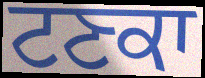
ਟਣਕਾ